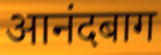
आनंदबाग